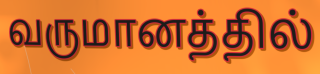
வருமானத்தில்